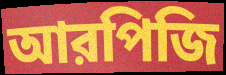
আরপিজি